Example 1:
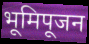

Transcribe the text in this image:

भूमिपूजन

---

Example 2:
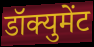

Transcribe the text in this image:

डॉक्युमेंट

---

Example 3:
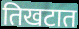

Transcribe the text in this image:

तिखटात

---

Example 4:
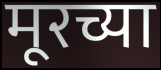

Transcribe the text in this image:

मूरच्या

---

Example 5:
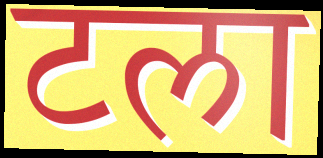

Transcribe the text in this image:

टला